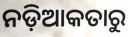
ନଡ଼ିଆକତାରୁ